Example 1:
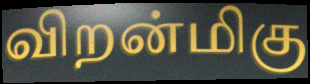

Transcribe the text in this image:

விறன்மிகு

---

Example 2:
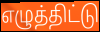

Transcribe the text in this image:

எழுத்திட்டு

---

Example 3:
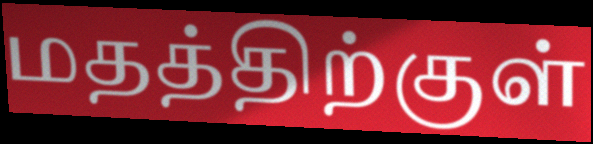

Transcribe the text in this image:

மதத்திற்குள்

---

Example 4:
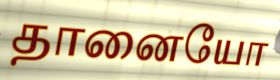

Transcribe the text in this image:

தானையோ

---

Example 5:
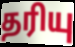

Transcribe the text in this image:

தரியு